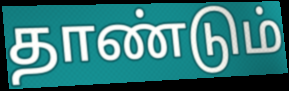
தாண்டும்